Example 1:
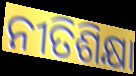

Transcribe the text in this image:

ନୀତିଶିକ୍ଷା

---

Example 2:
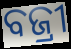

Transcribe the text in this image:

ବଜ୍ରୀ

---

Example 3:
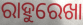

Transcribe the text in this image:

ରାହୁରେଖା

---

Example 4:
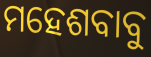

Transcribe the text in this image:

ମହେଶବାବୁ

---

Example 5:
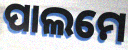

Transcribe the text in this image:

ପାଲମେ